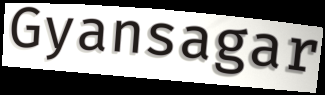
Gyansagar